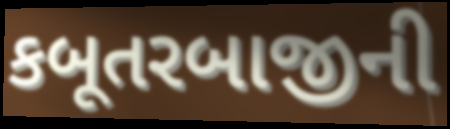
કબૂતરબાજીની